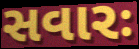
સવારઃ